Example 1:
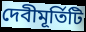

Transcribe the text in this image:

দেবীমূর্তিটি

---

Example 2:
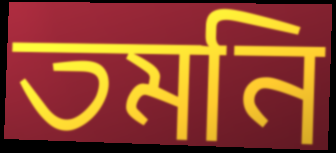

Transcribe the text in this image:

তমনি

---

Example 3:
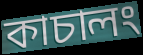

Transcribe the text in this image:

কাচালং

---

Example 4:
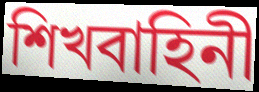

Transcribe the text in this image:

শিখবাহিনী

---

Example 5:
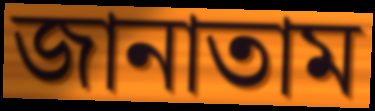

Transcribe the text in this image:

জানাতাম